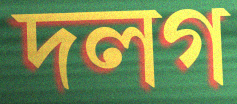
দলগ